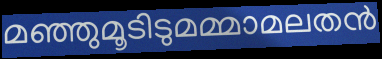
മഞ്ഞുമൂടിടുമമ്മാമലതൻ